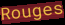
Rouges